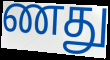
ணது